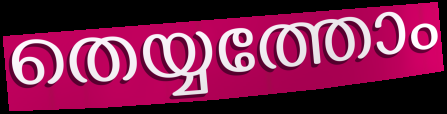
തെയ്യത്തോം